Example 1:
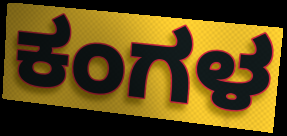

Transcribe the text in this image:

ಕಂಗಳ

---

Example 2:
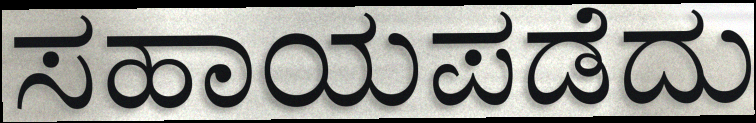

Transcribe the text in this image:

ಸಹಾಯಪಡೆದು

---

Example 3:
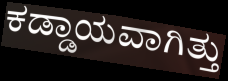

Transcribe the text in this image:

ಕಡ್ಡಾಯವಾಗಿತ್ತು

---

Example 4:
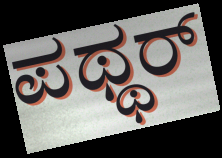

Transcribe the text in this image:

ಪಥ್ಥರ್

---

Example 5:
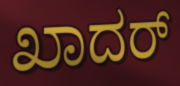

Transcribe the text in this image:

ಖಾದರ್